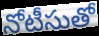
నోటీసుతో